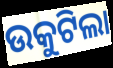
ଉକୁଟିଲା